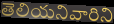
తెలియనివారిని